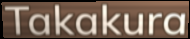
Takakura